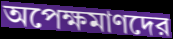
অপেক্ষমাণদের